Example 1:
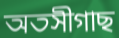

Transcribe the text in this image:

অতসীগাছ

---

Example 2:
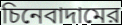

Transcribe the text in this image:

চিনেবাদামের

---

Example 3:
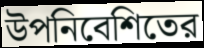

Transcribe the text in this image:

উপনিবেশিতের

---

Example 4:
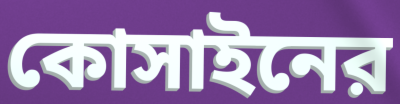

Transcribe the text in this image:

কোসাইনের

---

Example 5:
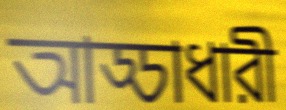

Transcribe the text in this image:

আড্ডাধারী